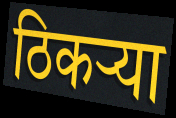
ठिकर्‍या